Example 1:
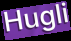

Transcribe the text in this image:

Hugli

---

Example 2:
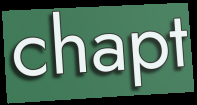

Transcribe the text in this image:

chapt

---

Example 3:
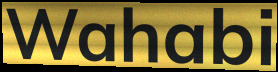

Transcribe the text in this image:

Wahabi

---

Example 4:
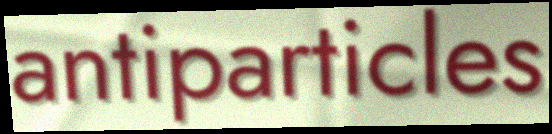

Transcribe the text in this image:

antiparticles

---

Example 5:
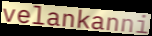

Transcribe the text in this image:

velankanni